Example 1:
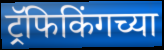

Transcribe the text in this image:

ट्रॅफिकिंगच्या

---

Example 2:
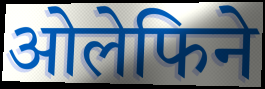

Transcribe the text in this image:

ओलेफिने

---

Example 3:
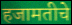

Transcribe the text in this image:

हजामतीचे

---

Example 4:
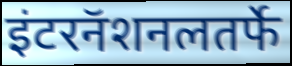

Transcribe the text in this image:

इंटरनॅशनलतर्फे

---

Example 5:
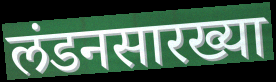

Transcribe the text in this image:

लंडनसारख्या